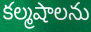
కల్మషాలను